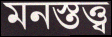
মনস্তত্ত্ব